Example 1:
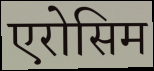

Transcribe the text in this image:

एरोसिम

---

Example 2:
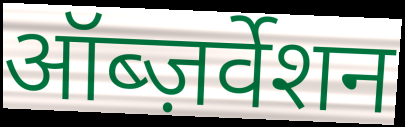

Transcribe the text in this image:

ऑब्ज़र्वेशन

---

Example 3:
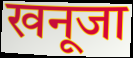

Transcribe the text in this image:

खनूजा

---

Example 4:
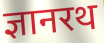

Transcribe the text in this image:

ज्ञानरथ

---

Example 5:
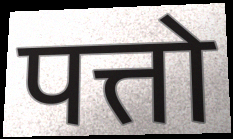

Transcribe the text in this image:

पत्तो